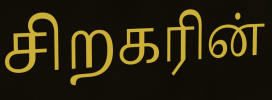
சிறகரின்